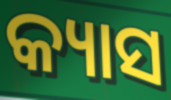
କ୍ୟାସ